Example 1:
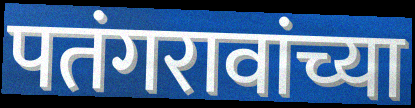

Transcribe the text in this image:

पतंगरावांच्या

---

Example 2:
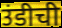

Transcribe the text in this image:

उंडीची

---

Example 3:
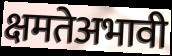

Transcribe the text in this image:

क्षमतेअभावी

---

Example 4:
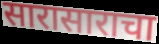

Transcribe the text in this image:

सारासाराचा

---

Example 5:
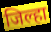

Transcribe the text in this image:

जिल्हा